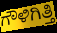
ಗೌಳಿಗಿತ್ತಿ